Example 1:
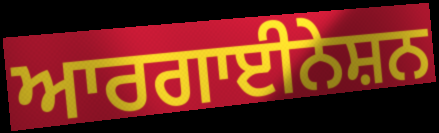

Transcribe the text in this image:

ਆਰਗਾਈਨੇਸ਼ਨ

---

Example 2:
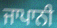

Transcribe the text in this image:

ਜਾਪਾਨੀ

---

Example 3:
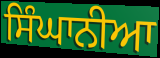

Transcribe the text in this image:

ਸਿੰਘਾਨੀਆ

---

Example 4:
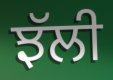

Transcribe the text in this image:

ਝੱਲੀ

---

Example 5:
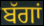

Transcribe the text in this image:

ਬੱਗਾਂ